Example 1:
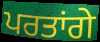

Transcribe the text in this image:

ਪਰਤਾਂਗੇ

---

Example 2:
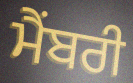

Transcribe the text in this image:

ਮੈਂਬਰੀ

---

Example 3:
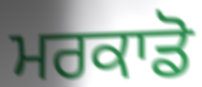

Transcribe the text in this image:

ਮਰਕਾਡੋ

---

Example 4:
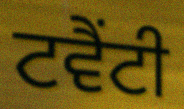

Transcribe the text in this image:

ਟਵੈਂਟੀ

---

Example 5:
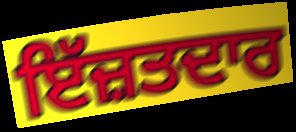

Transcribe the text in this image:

ਇੱਜ਼ਤਦਾਰ